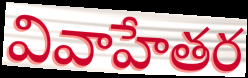
వివాహేతర